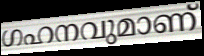
ഗഹനവുമാണ്